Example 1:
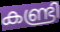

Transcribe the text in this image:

കണ്ട്രി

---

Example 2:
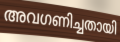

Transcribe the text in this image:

അവഗണിച്ചതായി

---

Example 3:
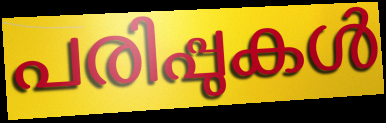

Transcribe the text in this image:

പരിപ്പുകൾ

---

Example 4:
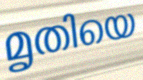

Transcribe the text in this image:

മൃതിയെ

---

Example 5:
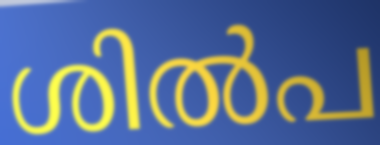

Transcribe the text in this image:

ശിൽപ